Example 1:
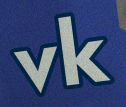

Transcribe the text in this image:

vk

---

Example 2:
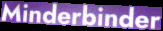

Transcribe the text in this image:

Minderbinder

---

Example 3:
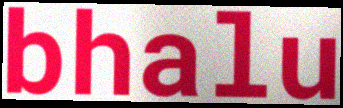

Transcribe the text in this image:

bhalu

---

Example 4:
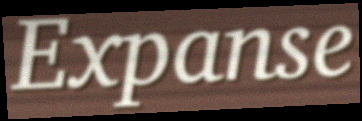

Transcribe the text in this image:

Expanse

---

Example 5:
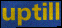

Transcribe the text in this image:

uptill